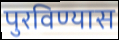
पुरविण्यास